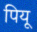
पियू